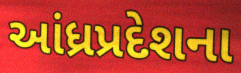
આંધ્રપ્રદેશના